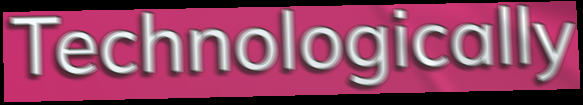
Technologically